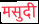
मसुदी